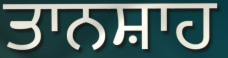
ਤਾਨਸ਼ਾਹ